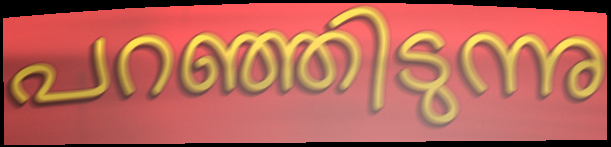
പറഞ്ഞിടുന്നു